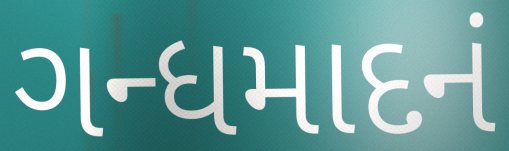
ગન્ધમાદનં